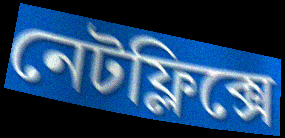
নেটফ্লিক্সে